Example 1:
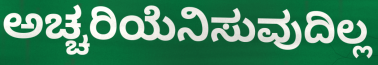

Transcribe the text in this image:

ಅಚ್ಚರಿಯೆನಿಸುವುದಿಲ್ಲ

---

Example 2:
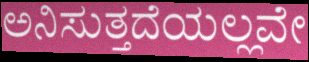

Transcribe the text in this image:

ಅನಿಸುತ್ತದೆಯಲ್ಲವೇ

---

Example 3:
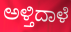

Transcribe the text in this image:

ಅಳ್ತಿದಾಳೆ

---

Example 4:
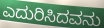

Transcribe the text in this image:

ಎದುರಿಸಿದವನು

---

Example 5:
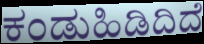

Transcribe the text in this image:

ಕಂಡುಹಿಡಿದಿದೆ